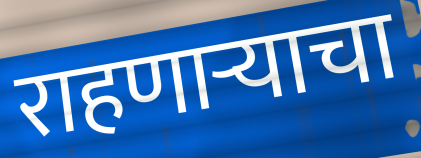
राहणाऱ्याचा